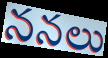
ననలు